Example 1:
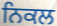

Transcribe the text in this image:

ਨਿਕਲ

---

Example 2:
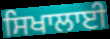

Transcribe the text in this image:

ਸਿਖਾਲਾਈ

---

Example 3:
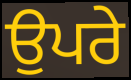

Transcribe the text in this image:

ਉਪਰੇ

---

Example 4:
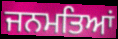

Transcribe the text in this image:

ਜਨਮਤਿਆਂ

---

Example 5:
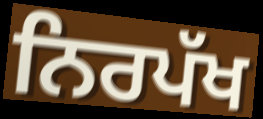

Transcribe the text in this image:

ਨਿਰਪੱਖ